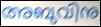
അബുവിനു